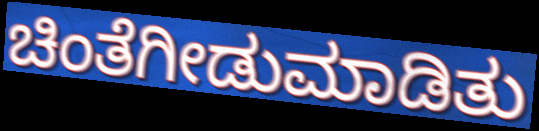
ಚಿಂತೆಗೀಡುಮಾಡಿತು